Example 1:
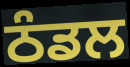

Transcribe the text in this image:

ਠੰਡਲ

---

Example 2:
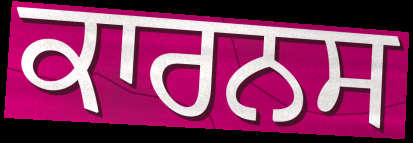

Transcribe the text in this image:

ਕਾਰਨਸ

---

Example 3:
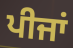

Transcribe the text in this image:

ਪੀਜਾਂ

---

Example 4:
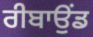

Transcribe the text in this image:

ਰੀਬਾਉਂਡ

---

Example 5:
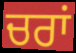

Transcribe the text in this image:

ਚਰਾਂ